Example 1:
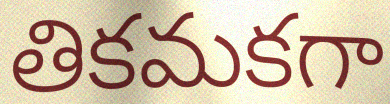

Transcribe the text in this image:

తికమకగా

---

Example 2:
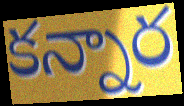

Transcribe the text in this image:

కన్నార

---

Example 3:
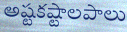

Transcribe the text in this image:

అష్టకష్టాలపాలు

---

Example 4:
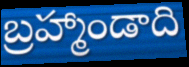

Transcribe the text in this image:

బ్రహ్మాండాది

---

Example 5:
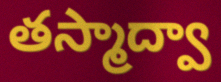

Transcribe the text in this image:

తస్మాద్వా